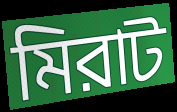
মিরাট